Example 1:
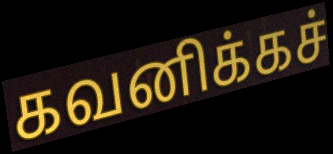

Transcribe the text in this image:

கவனிக்கச்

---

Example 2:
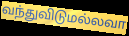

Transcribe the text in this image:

வந்துவிடுமல்லவா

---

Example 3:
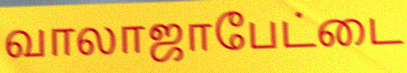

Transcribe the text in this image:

வாலாஜாபேட்டை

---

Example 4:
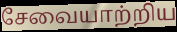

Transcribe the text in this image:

சேவையாற்றிய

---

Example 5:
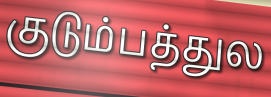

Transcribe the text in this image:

குடும்பத்துல